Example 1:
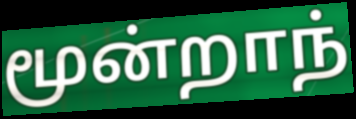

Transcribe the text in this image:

மூன்றாந்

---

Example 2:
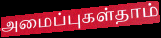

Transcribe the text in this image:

அமைப்புகள்தாம்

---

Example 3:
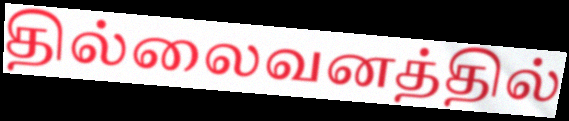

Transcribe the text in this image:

தில்லைவனத்தில்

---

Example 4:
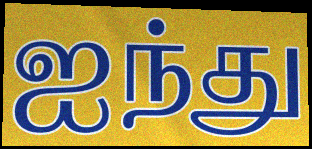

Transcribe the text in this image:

ஐந்து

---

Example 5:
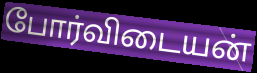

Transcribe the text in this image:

போர்விடையன்